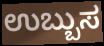
ಉಬ್ಬುಸ